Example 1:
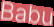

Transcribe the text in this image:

Babu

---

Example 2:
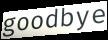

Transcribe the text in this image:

goodbye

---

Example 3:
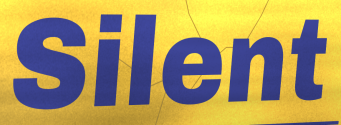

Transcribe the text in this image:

Silent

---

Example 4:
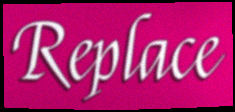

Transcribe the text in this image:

Replace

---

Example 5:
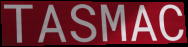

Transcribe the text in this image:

TASMAC